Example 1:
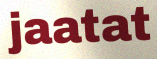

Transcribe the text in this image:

jaatat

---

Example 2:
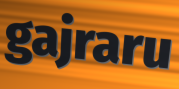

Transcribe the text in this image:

gajraru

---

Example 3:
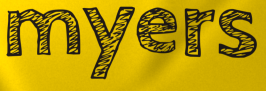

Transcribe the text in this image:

myers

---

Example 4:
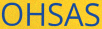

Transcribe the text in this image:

OHSAS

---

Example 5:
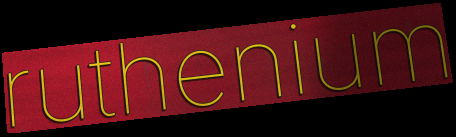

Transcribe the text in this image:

ruthenium